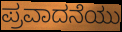
ಪ್ರವಾದನೆಯು